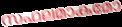
സഫലമാകുമോ